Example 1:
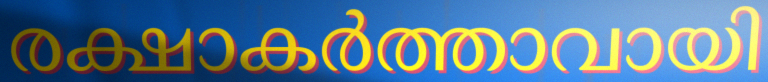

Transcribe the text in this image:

രക്ഷാകർത്താവായി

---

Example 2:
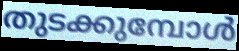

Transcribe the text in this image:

തുടക്കുമ്പോൾ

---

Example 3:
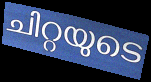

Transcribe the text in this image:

ചിറ്റയുടെ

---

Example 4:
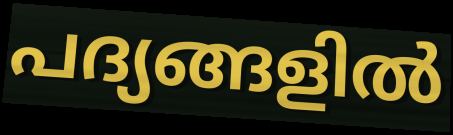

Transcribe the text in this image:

പദ്യങ്ങളിൽ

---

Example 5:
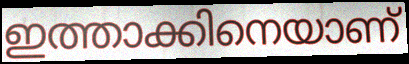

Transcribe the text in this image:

ഇത്താക്കിനെയാണ്